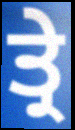
ਤ੍ਰੇ